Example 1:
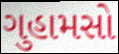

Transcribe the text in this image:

ગુહામસો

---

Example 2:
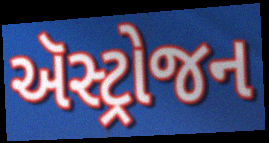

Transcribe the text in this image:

ઍસ્ટ્રોજન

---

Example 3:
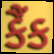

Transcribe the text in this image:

કૈંક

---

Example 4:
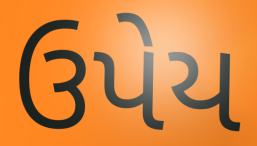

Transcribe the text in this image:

ઉપેય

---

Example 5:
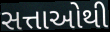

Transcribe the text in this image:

સત્તાઓથી